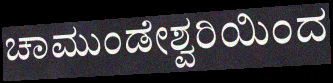
ಚಾಮುಂಡೇಶ್ವರಿಯಿಂದ